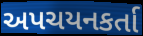
અપચયનકર્તા